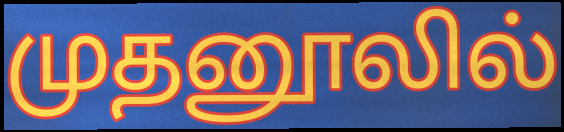
முதனூலில்